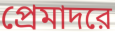
প্রেমাদরে